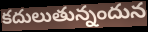
కదులుతున్నందున